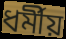
ধর্মীয়